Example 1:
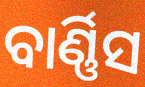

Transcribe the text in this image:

ବାର୍ଣ୍ଣିସ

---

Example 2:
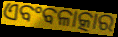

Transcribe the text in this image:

ଏବଂବଳାତ୍କାର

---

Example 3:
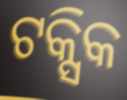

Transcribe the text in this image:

ଟକ୍ସିକ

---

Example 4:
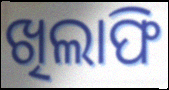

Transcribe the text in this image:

ଖିଲାଫି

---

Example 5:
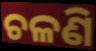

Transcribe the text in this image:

ଚଳଣି